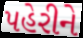
પહેરીને